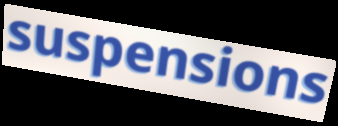
suspensions